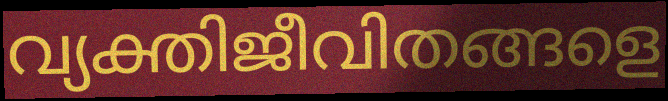
വ്യക്തിജീവിതങ്ങളെ